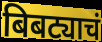
बिबट्याचं